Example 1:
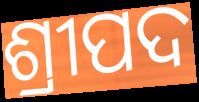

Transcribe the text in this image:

ଶ୍ରୀପଦ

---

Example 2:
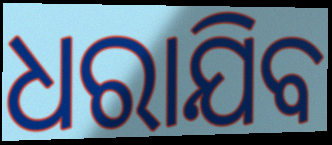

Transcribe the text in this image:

ଧରାଯିବ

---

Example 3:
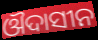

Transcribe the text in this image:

ଔଦାସୀନ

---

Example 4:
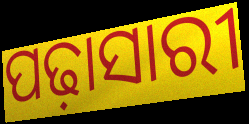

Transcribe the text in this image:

ପଢ଼ାସାରୀ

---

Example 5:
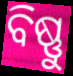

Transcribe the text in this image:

ବିଷ୍ଣୁ